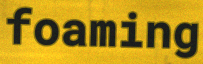
foaming